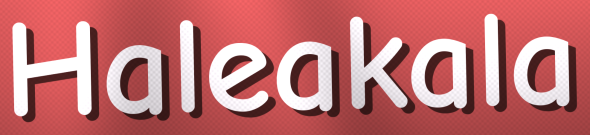
Haleakala